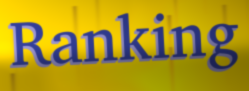
Ranking